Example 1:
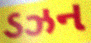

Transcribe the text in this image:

ડઝન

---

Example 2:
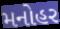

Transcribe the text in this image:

મનોહર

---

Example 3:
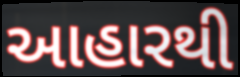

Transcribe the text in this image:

આહારથી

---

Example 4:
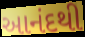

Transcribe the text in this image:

આનંદથી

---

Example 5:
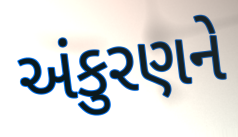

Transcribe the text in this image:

અંકુરણને